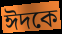
ঈদকে